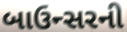
બાઉન્સરની